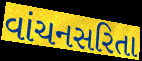
વાંચનસરિતા